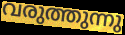
വരുത്തുന്നു